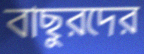
বাছুরদের